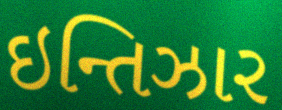
ઇન્તિઝાર